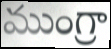
ముంగ్రా